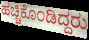
ಹಚ್ಚಿಕೊಂಡಿದ್ದರು